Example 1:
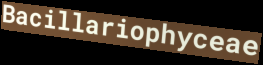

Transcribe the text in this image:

Bacillariophyceae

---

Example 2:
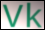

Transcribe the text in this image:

Vk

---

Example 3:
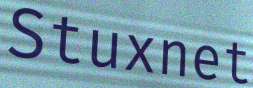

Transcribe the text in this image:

Stuxnet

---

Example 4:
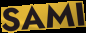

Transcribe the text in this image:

SAMI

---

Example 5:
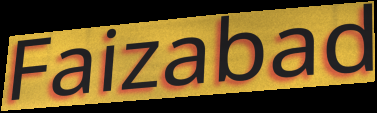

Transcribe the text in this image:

Faizabad